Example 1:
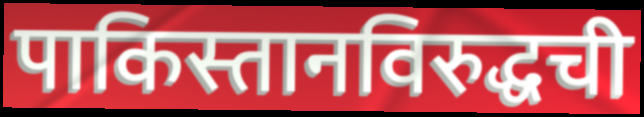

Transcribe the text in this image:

पाकिस्तानविरुद्धची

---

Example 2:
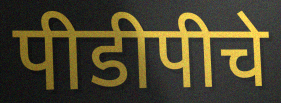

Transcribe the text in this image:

पीडीपीचे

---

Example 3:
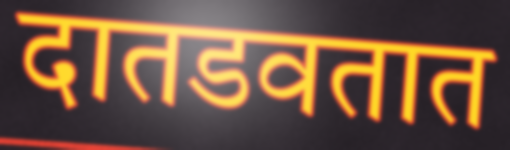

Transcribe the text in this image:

दातडवतात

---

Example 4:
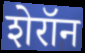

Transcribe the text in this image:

शेरॉन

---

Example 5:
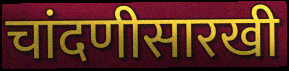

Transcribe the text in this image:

चांदणीसारखी